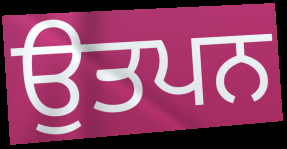
ਉਤਪਨ